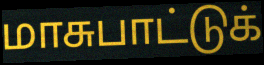
மாசுபாட்டுக்